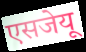
एसजेयू